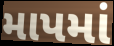
માપમાં